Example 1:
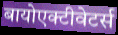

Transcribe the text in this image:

बायोएक्टीवेटर्स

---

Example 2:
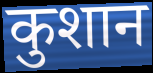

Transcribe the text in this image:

कुशान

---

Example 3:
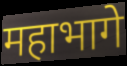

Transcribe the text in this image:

महाभागे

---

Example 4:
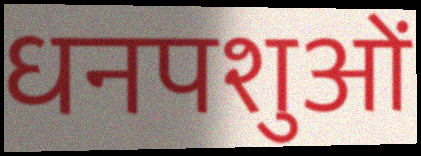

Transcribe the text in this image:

धनपशुओं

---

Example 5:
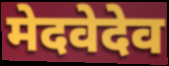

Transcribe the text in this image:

मेदवेदेव